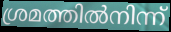
ശ്രമത്തിൽനിന്ന്